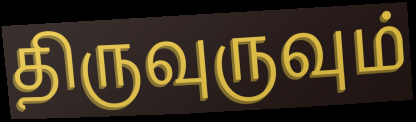
திருவுருவும்